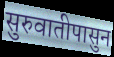
सुरुवातीपासुन